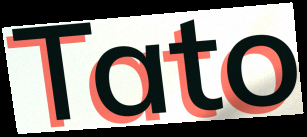
Tato